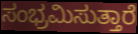
ಸಂಭ್ರಮಿಸುತ್ತಾರೆ